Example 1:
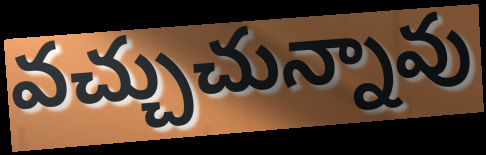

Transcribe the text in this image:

వచ్చుచున్నావు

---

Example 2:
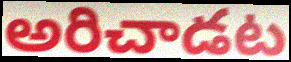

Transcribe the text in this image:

అరిచాడట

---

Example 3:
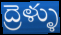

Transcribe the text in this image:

ద్రెళ్ళు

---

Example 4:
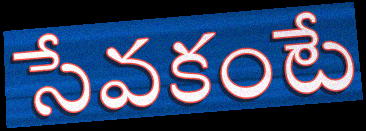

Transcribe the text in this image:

సేవకంటే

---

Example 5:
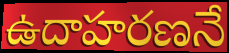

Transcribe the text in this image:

ఉదాహరణనే